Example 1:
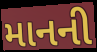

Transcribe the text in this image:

માનની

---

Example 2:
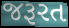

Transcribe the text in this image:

જરૂરત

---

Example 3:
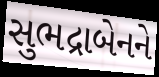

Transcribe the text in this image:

સુભદ્રાબેનને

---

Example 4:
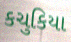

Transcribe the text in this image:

કચુકિયા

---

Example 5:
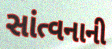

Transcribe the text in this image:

સાંત્વનાની